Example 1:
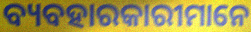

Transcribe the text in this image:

ବ୍ୟବହାରକାରୀମାନେ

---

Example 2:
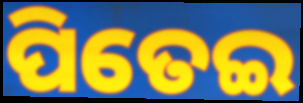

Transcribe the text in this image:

ପିତେଇ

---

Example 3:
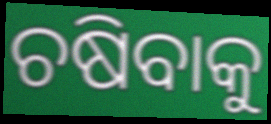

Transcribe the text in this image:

ଚଷିବାକୁ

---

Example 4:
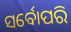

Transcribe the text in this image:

ସର୍ବୋପରି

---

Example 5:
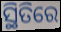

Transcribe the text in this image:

ସ୍ଥିତିରେ